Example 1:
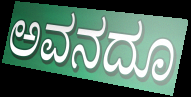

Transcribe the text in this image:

ಅವನದೂ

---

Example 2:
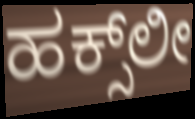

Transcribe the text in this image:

ಹಕ್ಸ್‌ಲೀ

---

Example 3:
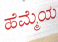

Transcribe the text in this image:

ಹೆಮ್ಮೆಯ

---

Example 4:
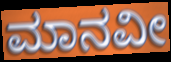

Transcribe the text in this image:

ಮಾನವೀ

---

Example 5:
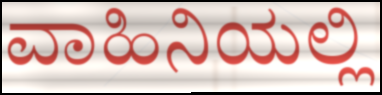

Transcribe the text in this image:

ವಾಹಿನಿಯಲ್ಲಿ